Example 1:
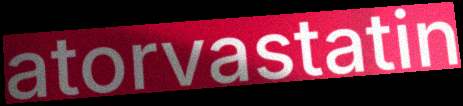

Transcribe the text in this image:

atorvastatin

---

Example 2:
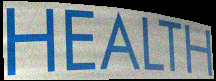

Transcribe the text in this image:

HEALTH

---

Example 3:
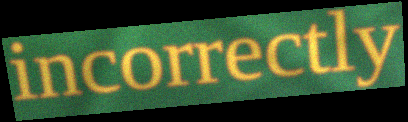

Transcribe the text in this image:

incorrectly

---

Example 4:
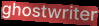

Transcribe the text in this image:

ghostwriter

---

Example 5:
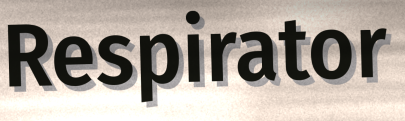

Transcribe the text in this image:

Respirator